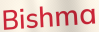
Bishma